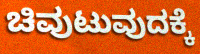
ಚಿವುಟುವುದಕ್ಕೆ